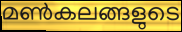
മൺകലങ്ങളുടെ